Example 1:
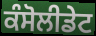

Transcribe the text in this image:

ਕੰਸੋਲੀਡੇਟ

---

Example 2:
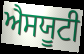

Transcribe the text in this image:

ਐਸਯੂਟੀ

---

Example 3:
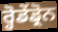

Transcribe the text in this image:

ਰ੍ਹੋਡੇਂਡ੍ਰੋਨ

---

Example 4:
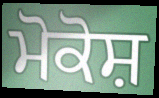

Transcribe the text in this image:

ਮੋਕੋਸ਼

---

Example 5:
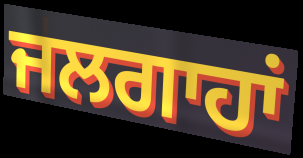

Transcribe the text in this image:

ਜਲਗਾਹਾਂ